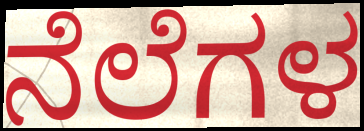
ನೆಲೆಗಳ